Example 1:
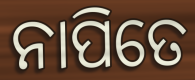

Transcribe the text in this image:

ନାପିତେ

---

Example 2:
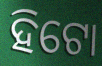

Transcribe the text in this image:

ହିଟୋ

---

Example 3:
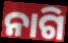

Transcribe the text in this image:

ନାଗି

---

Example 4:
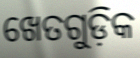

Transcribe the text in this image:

ଖେତଗୁଡ଼ିକ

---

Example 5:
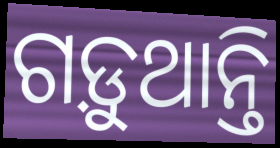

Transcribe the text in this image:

ଗଡ଼ୁଥାନ୍ତି